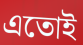
এতোই